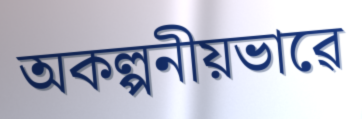
অকল্পনীয়ভাৱে